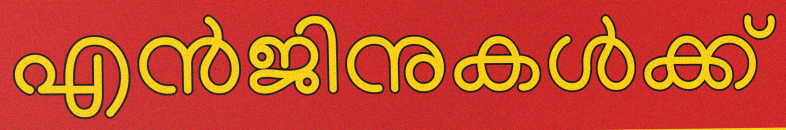
എൻജിനുകൾക്ക്